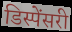
डिस्पेंसरी